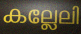
കല്ലേലി